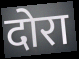
दोरा